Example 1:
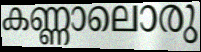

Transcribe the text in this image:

കണ്ണാലൊരു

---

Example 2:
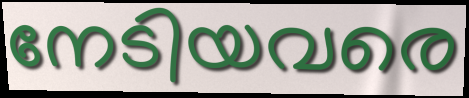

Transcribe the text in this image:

നേടിയവരെ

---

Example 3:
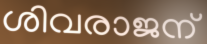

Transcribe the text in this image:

ശിവരാജന്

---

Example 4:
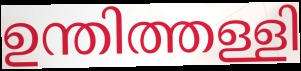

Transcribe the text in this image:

ഉന്തിത്തള്ളി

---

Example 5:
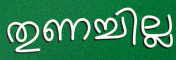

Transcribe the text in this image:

തുണച്ചില്ല